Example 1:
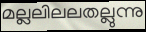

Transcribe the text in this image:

മല്ലലിലലതല്ലുന്നു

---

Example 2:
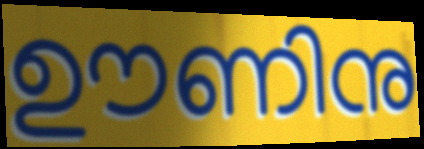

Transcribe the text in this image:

ഊണിനു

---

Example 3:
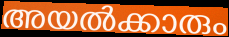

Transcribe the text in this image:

അയൽക്കാരും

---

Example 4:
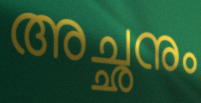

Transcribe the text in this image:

അച്ഛനും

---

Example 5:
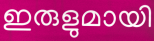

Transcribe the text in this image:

ഇരുളുമായി